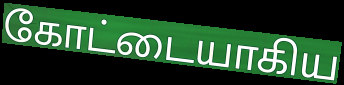
கோட்டையாகிய